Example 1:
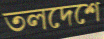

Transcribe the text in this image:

তলদেশে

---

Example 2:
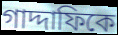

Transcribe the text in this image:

গাদ্দাফিকে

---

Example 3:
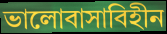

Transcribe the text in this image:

ভালোবাসাবিহীন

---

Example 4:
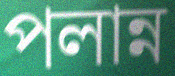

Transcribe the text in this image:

পলান্ন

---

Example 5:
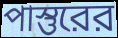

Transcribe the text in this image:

পাস্তুরের